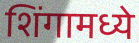
शिंगामध्ये